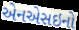
એનએસઇનો